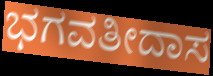
ಭಗವತೀದಾಸ